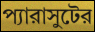
প্যারাসুটের